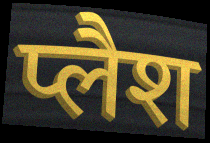
प्लैश